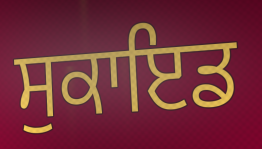
ਸੁਕਾਇਡ